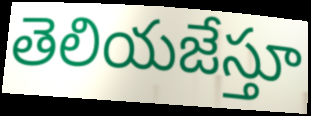
తెలియజేస్తూ